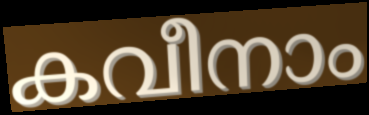
കവീനാം